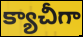
క్యాచీగా